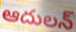
ఆదులన్